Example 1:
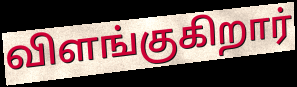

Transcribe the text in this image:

விளங்குகிறார்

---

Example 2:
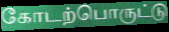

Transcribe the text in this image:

கோடற்பொருட்டு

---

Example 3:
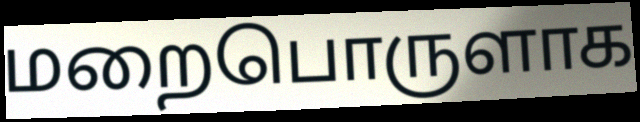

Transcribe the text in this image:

மறைபொருளாக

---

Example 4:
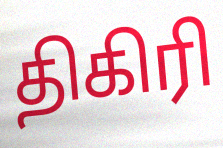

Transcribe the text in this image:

திகிரி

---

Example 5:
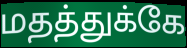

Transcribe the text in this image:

மதத்துக்கே